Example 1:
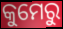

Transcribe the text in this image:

କୁମେରୁ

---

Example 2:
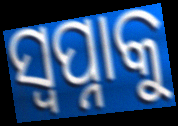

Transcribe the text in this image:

ସ୍ୱପ୍ନାକୁ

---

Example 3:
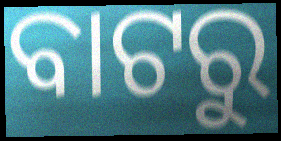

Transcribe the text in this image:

ବାଟରୁ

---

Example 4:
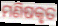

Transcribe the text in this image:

ମଣିଷକୃତ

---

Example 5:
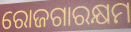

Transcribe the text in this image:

ରୋଜଗାରକ୍ଷମ